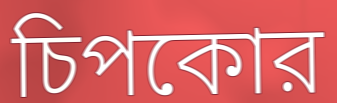
চিপকোর